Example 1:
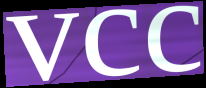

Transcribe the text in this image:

vcc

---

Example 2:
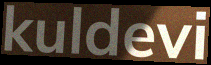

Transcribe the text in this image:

kuldevi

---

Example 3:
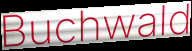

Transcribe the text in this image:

Buchwald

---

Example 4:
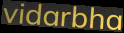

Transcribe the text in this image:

vidarbha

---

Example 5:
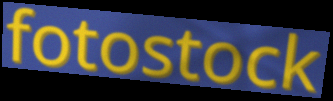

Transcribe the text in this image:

fotostock